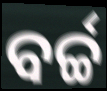
ବର୍ଚ୍ଚ